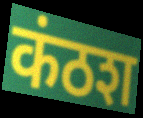
कंठश